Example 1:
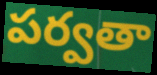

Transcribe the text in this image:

పర్వతా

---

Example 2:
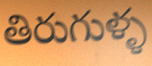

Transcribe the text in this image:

తిరుగుళ్ళ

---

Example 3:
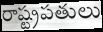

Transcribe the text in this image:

రాష్ట్రపతులు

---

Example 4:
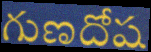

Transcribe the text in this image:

గుణదోష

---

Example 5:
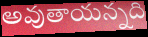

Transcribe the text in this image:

అవుతాయన్నది